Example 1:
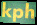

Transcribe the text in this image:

kph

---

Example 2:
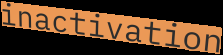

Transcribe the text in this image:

inactivation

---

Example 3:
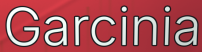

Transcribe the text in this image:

Garcinia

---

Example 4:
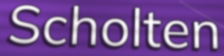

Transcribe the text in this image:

Scholten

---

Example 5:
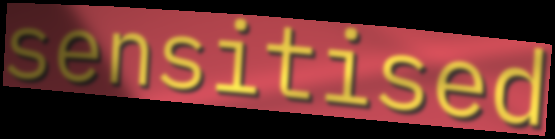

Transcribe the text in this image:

sensitised